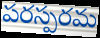
పరస్పరమ